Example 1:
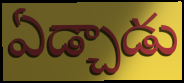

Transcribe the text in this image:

ఏడ్చాడు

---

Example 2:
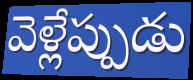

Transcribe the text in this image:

వెళ్లేప్పుడు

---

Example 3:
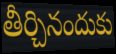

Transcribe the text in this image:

తీర్చినందుకు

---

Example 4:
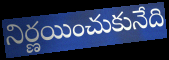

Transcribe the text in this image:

నిర్ణయించుకునేది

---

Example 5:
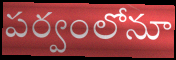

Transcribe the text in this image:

పర్వంలోనూ